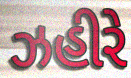
ઝહીરે